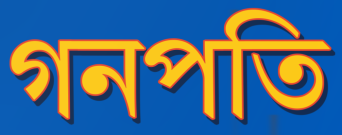
গনপতি